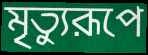
মৃত্যুরূপে